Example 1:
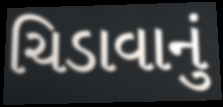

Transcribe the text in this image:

ચિડાવાનું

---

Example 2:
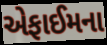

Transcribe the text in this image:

એફાઈમના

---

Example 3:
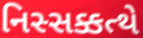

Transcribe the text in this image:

નિસ્સક્કત્થે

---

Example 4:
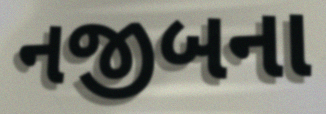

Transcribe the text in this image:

નજીબના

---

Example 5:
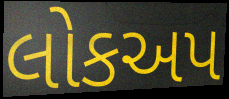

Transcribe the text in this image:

લોકઅપ